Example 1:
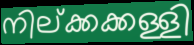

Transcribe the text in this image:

നില്ക്കക്കള്ളി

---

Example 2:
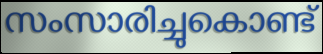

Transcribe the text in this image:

സംസാരിച്ചുകൊണ്ട്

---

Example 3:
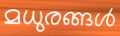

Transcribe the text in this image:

മധുരങ്ങൾ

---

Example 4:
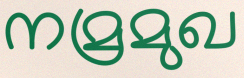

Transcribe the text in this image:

നമ്രമുഖ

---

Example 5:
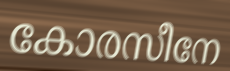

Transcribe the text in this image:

കോരസീനേ